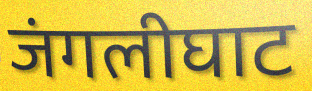
जंगलीघाट